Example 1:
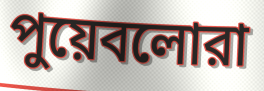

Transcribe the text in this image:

পুয়েবলোরা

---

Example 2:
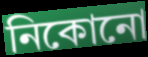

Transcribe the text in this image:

নিকোনো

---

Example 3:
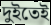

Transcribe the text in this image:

দুইতেই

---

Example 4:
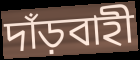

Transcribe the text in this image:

দাঁড়বাহী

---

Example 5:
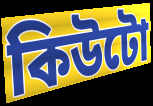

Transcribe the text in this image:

কিউটো